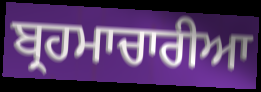
ਬ੍ਰਹਮਾਚਾਰੀਆ